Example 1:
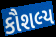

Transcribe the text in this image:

કૌશલ્ય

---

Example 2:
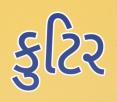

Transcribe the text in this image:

કુટિર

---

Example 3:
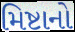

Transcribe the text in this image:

મિષ્ટાનો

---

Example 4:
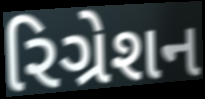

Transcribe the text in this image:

રિગ્રેશન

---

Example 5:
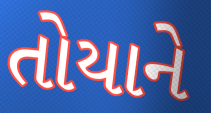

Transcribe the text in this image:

તોયાને